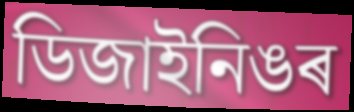
ডিজাইনিঙৰ